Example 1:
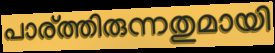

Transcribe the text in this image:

പാര്ത്തിരുന്നതുമായി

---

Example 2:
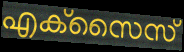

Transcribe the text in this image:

എക്‌സൈസ്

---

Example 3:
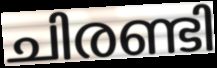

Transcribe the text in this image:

ചിരണ്ടി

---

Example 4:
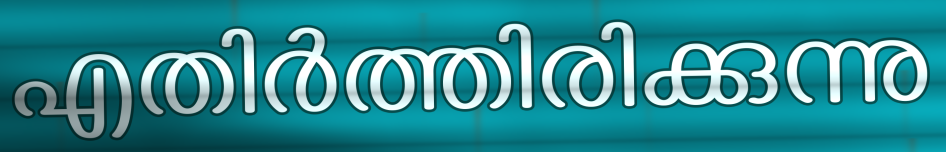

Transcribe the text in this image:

എതിർത്തിരിക്കുന്നു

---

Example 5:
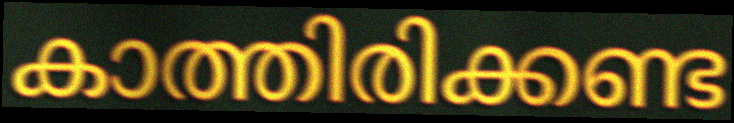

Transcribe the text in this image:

കാത്തിരിക്കണ്ട